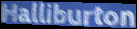
Halliburton